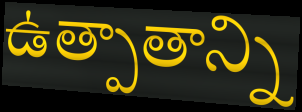
ఉత్పాతాన్ని